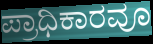
ಪ್ರಾಧಿಕಾರವೂ